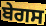
ਬੇਗਸ